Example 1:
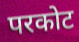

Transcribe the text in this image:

परकोट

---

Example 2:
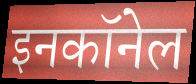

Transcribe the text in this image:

इनकॉनेल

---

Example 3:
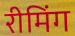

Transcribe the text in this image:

रीमिंग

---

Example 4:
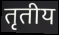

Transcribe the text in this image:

तृतीय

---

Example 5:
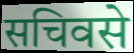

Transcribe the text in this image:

सचिवसे